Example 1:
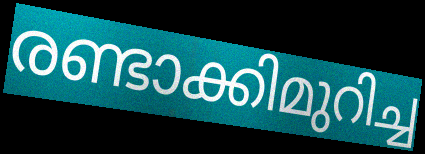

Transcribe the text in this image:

രണ്ടാക്കിമുറിച്ച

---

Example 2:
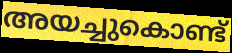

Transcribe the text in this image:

അയച്ചുകൊണ്ട്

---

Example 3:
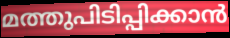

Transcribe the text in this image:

മത്തുപിടിപ്പിക്കാൻ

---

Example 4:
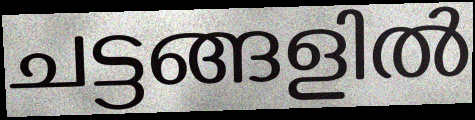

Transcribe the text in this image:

ചട്ടങ്ങളിൽ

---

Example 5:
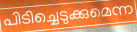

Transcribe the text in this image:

പിടിച്ചെടുക്കുമെന്ന